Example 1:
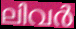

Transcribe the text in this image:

ലിവർ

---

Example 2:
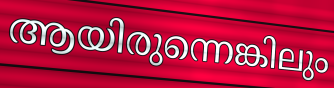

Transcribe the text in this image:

ആയിരുന്നെങ്കിലും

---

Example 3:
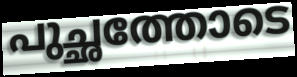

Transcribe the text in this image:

പുച്ഛത്തോടെ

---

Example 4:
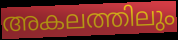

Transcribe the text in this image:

അകലത്തിലും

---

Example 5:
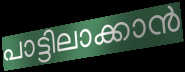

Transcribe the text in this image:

പാട്ടിലാക്കാൻ